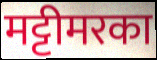
मट्टीमरका